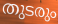
തുടരും